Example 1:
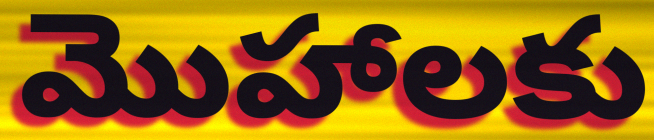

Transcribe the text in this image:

మొహాలకు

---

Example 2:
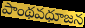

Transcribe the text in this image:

పాంథవధూజన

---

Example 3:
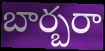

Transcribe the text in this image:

బార్బరా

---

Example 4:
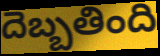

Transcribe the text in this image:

దెబ్బతింది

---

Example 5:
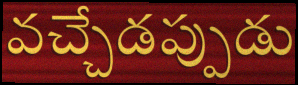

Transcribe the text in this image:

వచ్చేడప్పుడు